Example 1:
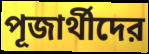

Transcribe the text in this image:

পূজার্থীদের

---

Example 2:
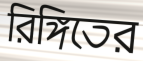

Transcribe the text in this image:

রিঙ্গিতের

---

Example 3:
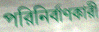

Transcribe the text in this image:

পরিনির্বাণকারী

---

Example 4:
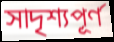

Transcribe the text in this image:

সাদৃশ্যপূর্ণ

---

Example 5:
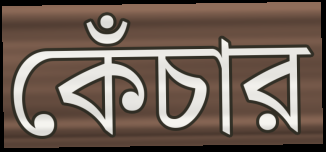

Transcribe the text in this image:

কেঁচার